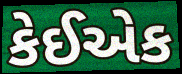
કેઈએક